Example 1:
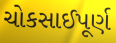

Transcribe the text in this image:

ચોકસાઈપૂર્ણ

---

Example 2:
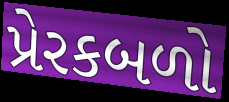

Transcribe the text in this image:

પ્રેરકબળો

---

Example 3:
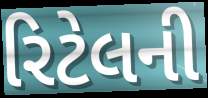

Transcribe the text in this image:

રિટેલની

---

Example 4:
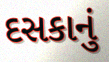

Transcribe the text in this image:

દસકાનું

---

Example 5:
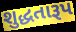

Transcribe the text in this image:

શુદ્ધતારૂપ